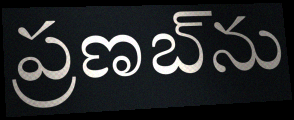
ప్రణబ్‌ను